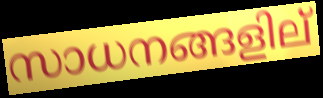
സാധനങ്ങളില്